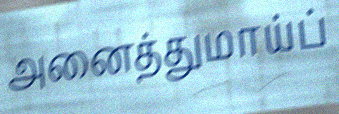
அனைத்துமாய்ப்